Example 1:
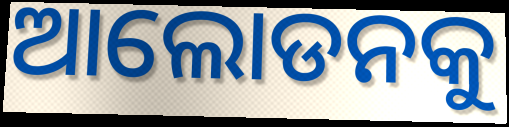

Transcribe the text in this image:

ଆଲୋଡନକୁ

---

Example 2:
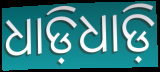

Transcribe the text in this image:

ଧାଡ଼ିଧାଡ଼ି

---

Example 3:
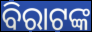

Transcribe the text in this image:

ବିରାଟଙ୍କ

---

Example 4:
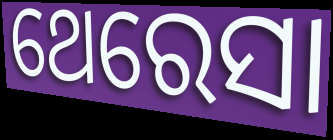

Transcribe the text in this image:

ଥେରେସା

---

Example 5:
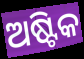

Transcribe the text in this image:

ଅଷ୍ଟିକ